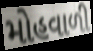
મોહવાળી